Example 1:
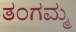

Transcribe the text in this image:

ತಂಗಮ್ಮ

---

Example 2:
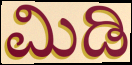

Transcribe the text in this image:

ಮಿಡಿ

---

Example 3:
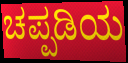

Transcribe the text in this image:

ಚಪ್ಪಡಿಯ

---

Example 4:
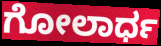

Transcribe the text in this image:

ಗೋಲಾರ್ಧ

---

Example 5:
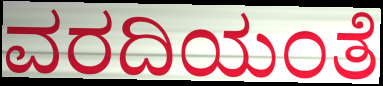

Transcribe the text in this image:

ವರದಿಯಂತೆ